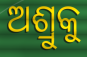
ଅଶ୍ରୁକୁ